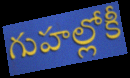
గుహల్లోకీ